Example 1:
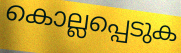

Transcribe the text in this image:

കൊല്ലപ്പെടുക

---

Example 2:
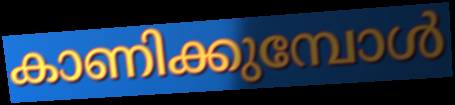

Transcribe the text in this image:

കാണിക്കുമ്പോൾ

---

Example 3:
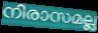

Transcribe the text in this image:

നിരാസമല്ല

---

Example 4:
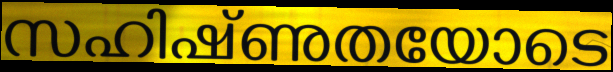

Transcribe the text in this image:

സഹിഷ്‌ണുതയോടെ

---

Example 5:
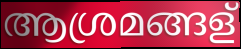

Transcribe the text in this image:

ആശ്രമങ്ങള്